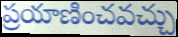
ప్రయాణించవచ్చు